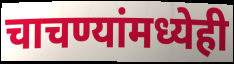
चाचण्यांमध्येही